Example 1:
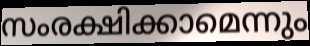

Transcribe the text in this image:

സംരക്ഷിക്കാമെന്നും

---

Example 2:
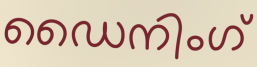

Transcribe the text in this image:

ഡൈനിംഗ്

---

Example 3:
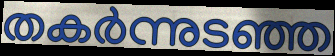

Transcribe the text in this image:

തകർന്നുടഞ്ഞ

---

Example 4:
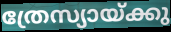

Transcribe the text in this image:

ത്രേസ്യായ്ക്കു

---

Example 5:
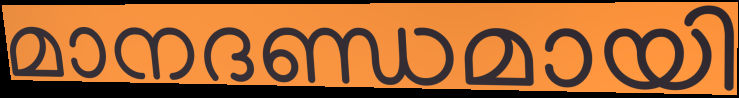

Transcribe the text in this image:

മാനദണ്ഡമായി